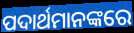
ପଦାର୍ଥମାନଙ୍କରେ